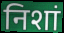
निशां